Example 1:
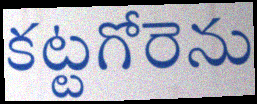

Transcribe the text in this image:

కట్టగోరెను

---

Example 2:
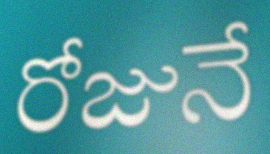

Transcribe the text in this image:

రోజునే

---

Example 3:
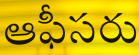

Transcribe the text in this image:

ఆఫీసరు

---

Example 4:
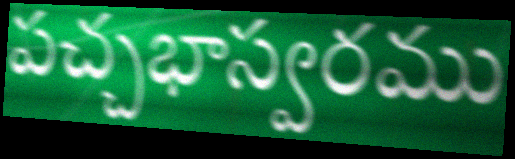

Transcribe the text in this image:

పచ్చభాస్వరము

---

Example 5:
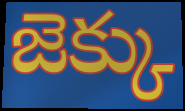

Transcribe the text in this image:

జెక్కు